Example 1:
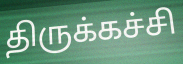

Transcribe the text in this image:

திருக்கச்சி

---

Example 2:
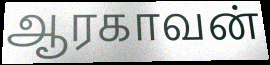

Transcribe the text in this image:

ஆரகாவன்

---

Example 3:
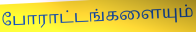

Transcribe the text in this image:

போராட்டங்களையும்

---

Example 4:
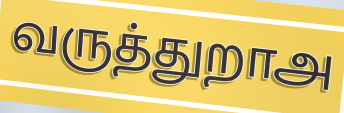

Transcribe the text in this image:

வருத்துறாஅ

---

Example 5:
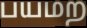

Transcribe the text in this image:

பயமற